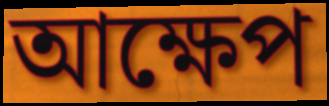
আক্ষেপ